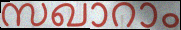
സഖാറാം